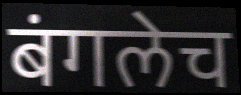
बंगलेच